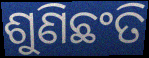
ଶୁଣିଛଂତି